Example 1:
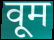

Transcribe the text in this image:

वूम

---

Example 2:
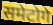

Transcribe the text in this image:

समेटोगे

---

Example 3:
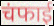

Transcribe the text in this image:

चंफाई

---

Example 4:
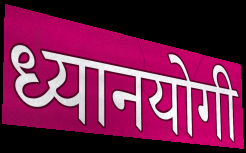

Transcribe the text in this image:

ध्यानयोगी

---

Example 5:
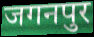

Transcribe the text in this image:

जगनपुर